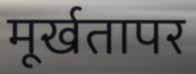
मूर्खतापर